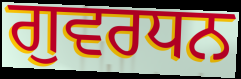
ਗੁਵਰਧਨ